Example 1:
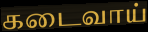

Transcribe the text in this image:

கடைவாய்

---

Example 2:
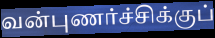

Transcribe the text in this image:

வன்புணர்ச்சிக்குப்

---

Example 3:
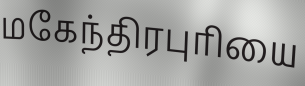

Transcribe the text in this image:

மகேந்திரபுரியை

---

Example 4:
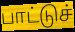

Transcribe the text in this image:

பாட்டுச்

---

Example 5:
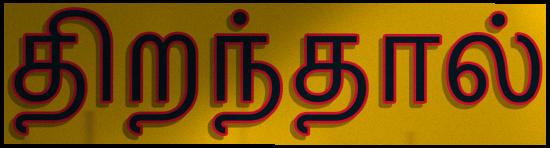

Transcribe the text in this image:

திறந்தால்